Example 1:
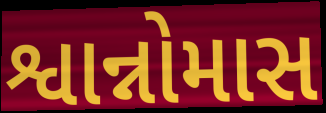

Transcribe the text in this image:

શ્વાન્નોમાસ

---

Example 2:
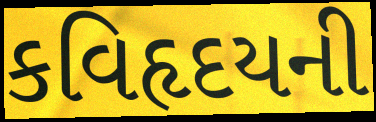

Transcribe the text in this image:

કવિહૃદયની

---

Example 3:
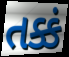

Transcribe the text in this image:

તક્કં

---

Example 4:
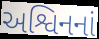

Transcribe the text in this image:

અશ્વિનનાં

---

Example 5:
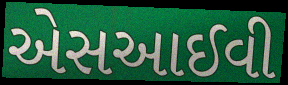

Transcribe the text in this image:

એસઆઈવી